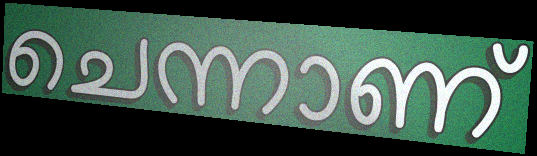
ചെന്നാണ്